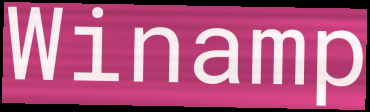
Winamp